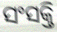
ସଂସକ୍ତି